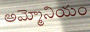
అమ్మోనియం